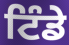
ਟਿੰਡੇ